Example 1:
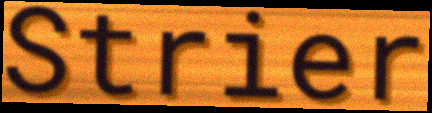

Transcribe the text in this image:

Strier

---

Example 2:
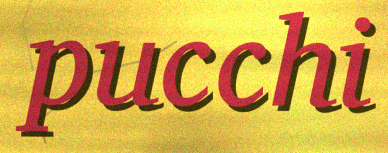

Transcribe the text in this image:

pucchi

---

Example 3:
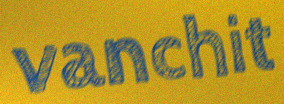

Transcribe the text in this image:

vanchit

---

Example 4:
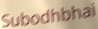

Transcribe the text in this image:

Subodhbhai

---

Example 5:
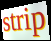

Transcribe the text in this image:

strip